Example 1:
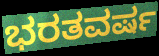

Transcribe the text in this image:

ಭರತವರ್ಷ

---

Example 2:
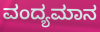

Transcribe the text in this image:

ವಂದ್ಯಮಾನ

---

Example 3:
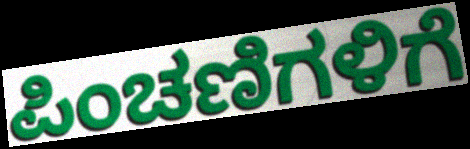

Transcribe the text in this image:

ಪಿಂಚಣಿಗಳಿಗೆ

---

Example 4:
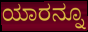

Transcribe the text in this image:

ಯಾರನ್ನೂ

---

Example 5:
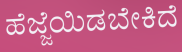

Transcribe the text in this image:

ಹೆಜ್ಜೆಯಿಡಬೇಕಿದೆ